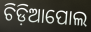
ଚିଡ଼ିଆପୋଲ